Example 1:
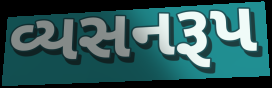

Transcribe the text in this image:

વ્યસનરૂપ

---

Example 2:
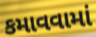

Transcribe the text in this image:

કમાવવામાં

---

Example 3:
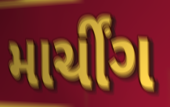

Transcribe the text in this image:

માર્ચીંગ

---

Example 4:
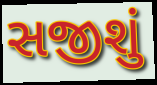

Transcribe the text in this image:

સજીશું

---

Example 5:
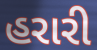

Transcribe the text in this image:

હરારી